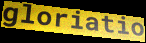
gloriatio